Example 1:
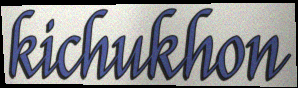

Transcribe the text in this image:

kichukhon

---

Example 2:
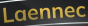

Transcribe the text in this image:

Laennec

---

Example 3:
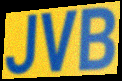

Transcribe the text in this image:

JVB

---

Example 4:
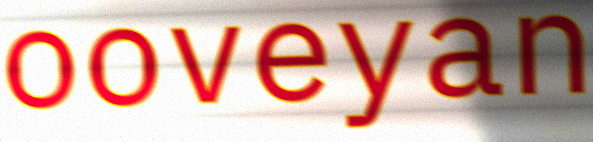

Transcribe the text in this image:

ooveyan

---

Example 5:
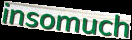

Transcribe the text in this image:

insomuch